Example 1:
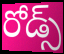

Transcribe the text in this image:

రోడ్స్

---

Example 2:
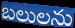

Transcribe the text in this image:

బలులను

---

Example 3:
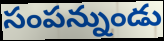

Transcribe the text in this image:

సంపన్నుండు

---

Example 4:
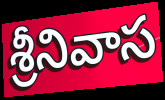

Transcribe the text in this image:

శ్రీనివాస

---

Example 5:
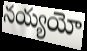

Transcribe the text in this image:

నయ్యయో